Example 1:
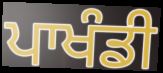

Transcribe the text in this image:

ਪਾਖੰਡੀ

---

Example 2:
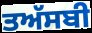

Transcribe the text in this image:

ਤਅੱਸਬੀ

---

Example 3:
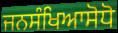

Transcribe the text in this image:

ਜਨਸੰਖਿਆਸੋਧੋ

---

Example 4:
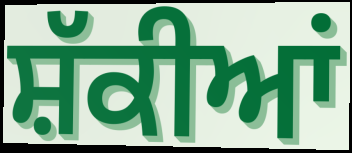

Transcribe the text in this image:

ਸ਼ੱਕੀਆਂ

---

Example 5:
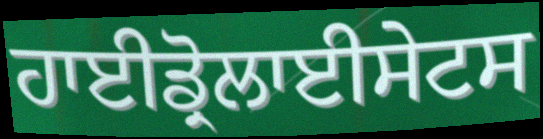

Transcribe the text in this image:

ਹਾਈਡ੍ਰੋਲਾਈਸੇਟਸ